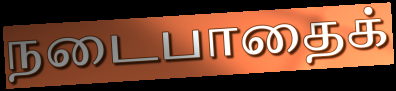
நடைபாதைக்